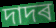
দাদৰ